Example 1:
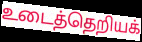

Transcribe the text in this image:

உடைத்தெறியக்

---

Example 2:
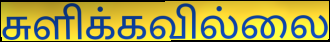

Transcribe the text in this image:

சுளிக்கவில்லை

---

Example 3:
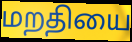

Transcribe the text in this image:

மறதியை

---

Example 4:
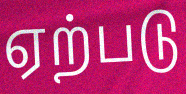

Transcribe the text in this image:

ஏற்படு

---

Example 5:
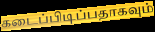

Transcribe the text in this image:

கடைப்பிடிப்பதாகவும்